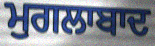
ਮੁਗਲਾਬਾਦ